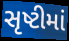
સૃષ્ટીમાં